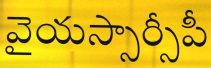
వైయస్సార్సీపీ